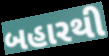
બહારથી